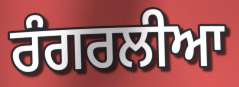
ਰੰਗਰਲੀਆ